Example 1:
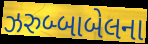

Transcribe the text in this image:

ઝરુબ્બાબેલના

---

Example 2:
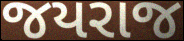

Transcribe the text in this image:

જયરાજ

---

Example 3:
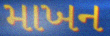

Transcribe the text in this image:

માખન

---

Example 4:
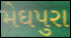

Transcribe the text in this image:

મેઘપુરા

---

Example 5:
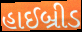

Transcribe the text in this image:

હાઈબ્રીડ